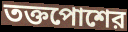
তক্তপোশের